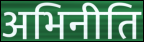
अभिनीति